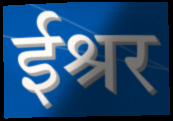
ईश्रर